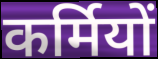
कर्मियों